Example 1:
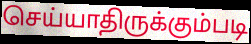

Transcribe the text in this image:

செய்யாதிருக்கும்படி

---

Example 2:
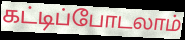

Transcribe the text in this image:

கட்டிப்போடலாம்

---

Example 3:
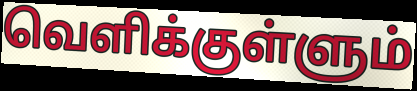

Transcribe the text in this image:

வெளிக்குள்ளும்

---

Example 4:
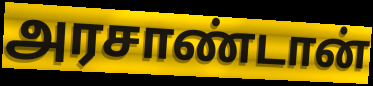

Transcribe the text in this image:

அரசாண்டான்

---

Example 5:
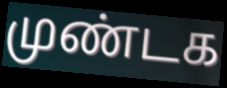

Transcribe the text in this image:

முண்டக